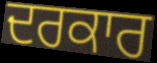
ਦਰਕਾਰ